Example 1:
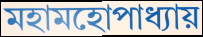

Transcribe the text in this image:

মহামহোপাধ্যায়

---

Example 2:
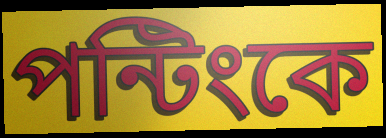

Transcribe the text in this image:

পন্টিংকে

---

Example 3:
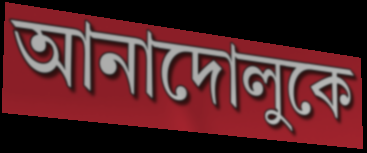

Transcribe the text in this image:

আনাদোলুকে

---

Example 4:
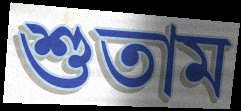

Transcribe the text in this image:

শুতাম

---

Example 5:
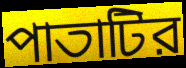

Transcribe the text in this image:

পাতাটির